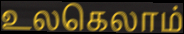
உலகெலாம்